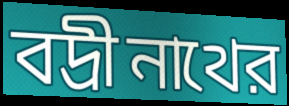
বদ্রীনাথের